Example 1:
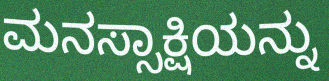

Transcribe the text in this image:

ಮನಸ್ಸಾಕ್ಷಿಯನ್ನು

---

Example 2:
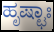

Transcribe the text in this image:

ಹೃಷ್ಟಾಃ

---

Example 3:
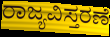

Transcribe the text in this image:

ರಾಜ್ಯವಿಸ್ತರಣೆ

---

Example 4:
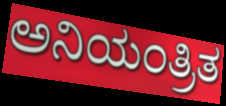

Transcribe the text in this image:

ಅನಿಯಂತ್ರಿತ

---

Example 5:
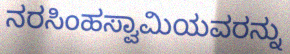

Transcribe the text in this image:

ನರಸಿಂಹಸ್ವಾಮಿಯವರನ್ನು